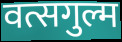
वत्सगुल्म